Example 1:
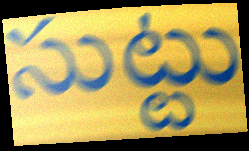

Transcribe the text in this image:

సుట్టు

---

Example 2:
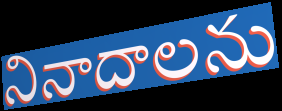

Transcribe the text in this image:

నినాదాలను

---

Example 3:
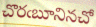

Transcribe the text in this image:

చొరఁబూనినచో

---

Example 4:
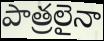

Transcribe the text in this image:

పాత్రలైనా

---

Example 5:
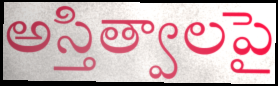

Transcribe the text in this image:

అస్తిత్వాలపై